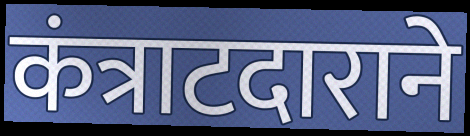
कंत्राटदाराने